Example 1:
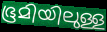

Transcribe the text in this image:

ഭൂമിയിലുള്ള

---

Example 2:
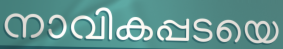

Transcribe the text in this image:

നാവികപ്പടയെ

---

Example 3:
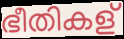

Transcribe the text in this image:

ഭീതികള്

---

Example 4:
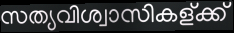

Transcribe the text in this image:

സത്യവിശ്വാസികള്ക്ക്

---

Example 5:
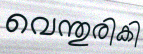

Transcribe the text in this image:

വെന്തുരികി